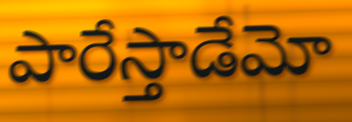
పారేస్తాడేమో